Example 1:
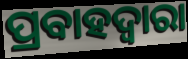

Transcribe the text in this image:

ପ୍ରବାହଦ୍ୱାରା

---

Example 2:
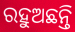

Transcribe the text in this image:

ରହୁଅଛନ୍ତି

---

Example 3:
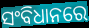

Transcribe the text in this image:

ସଂବିଧାନରେ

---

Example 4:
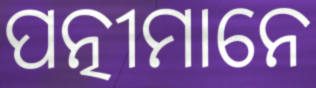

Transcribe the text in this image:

ପତ୍ନୀମାନେ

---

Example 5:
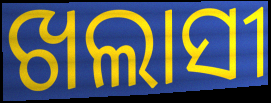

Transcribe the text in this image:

ଖଲାସୀ